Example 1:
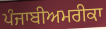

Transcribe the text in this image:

ਪੰਜਾਬੀਅਮਰੀਕਾ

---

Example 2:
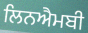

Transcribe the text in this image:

ਲਿਨਐਮਬੀ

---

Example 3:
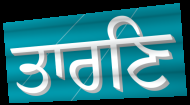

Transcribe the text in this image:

ਤਾਰਣਿ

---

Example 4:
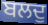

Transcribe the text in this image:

ਬਲਦੁ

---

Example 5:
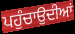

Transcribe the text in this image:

ਪਹੁੰਚਾਉਦੀਆਂ